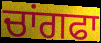
ਚਾਂਗਫਾ